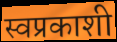
स्वप्रकाशी